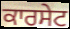
ਕਾਰਸੇਟ